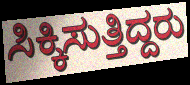
ಸಿಕ್ಕಿಸುತ್ತಿದ್ದರು